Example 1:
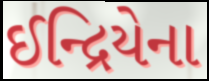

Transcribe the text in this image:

ઈન્દ્રિયેના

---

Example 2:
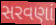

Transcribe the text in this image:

સરવણાં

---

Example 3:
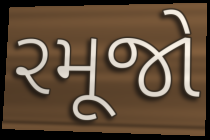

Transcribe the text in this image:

રમૂજો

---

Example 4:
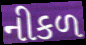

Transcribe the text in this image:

નીકળ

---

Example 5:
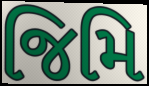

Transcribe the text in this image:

જિમિ